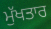
ਮੁੱਖਤਾਰ